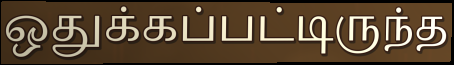
ஒதுக்கப்பட்டிருந்த